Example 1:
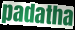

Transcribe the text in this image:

padatha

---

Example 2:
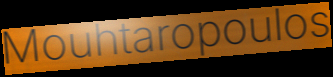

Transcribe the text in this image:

Mouhtaropoulos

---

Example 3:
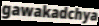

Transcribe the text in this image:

gawakadchya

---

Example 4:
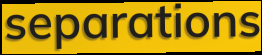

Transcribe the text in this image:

separations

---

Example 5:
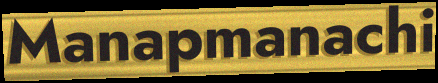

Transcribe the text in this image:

Manapmanachi